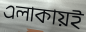
এলাকায়ই